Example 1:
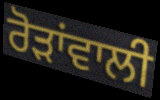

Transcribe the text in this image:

ਰੋੜਾਂਵਾਲੀ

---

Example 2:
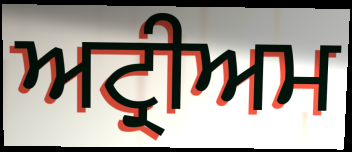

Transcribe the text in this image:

ਅਟ੍ਰੀਅਮ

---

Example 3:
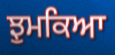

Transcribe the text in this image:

ਝੁਮਕਿਆ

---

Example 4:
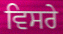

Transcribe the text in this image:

ਵਿਸਰੇ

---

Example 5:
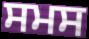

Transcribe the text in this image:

ਸਮਸ